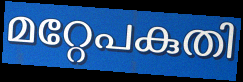
മറ്റേപകുതി